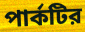
পার্কটির